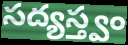
సద్యస్త్వం